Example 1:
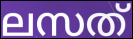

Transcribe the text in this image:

ലസത്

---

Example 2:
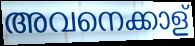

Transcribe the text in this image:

അവനെക്കാള്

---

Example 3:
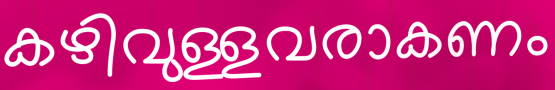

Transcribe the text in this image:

കഴിവുള്ളവരാകണം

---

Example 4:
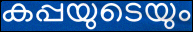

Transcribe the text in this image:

കപ്പയുടെയും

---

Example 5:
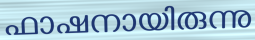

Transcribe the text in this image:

ഫാഷനായിരുന്നു